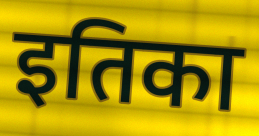
इतिका